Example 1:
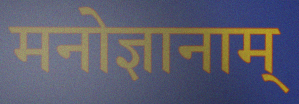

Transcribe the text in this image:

मनोज्ञानाम्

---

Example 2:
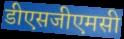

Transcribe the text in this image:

डीएसजीएमसी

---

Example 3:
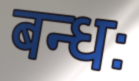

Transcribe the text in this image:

बन्धः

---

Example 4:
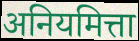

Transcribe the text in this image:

अनियमित्ता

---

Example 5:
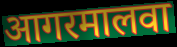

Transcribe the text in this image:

आगरमालवा